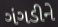
ગંગડીને